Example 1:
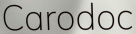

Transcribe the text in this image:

Carodoc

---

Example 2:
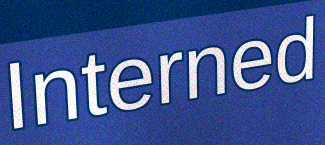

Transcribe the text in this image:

Interned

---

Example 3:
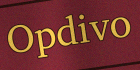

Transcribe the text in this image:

Opdivo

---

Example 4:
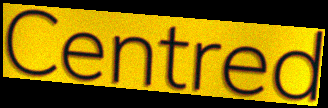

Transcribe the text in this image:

Centred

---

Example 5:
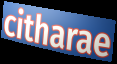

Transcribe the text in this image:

citharae